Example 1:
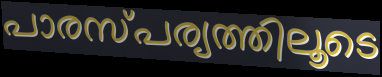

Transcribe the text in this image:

പാരസ്പര്യത്തിലൂടെ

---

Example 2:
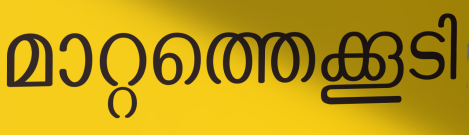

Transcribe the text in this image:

മാറ്റത്തെക്കൂടി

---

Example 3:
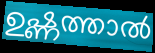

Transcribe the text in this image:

ഉഷ്ണത്താൽ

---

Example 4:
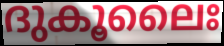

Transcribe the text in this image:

ദുകൂലൈഃ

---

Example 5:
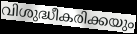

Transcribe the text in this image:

വിശുദ്ധീകരിക്കയും